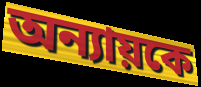
অন্যায়কে